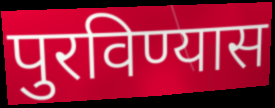
पुरविण्यास